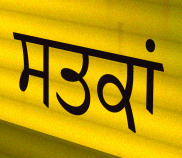
ਸਤਕਾਂ